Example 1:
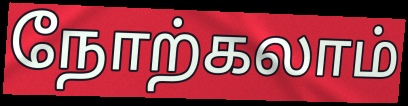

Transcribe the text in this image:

நோற்கலாம்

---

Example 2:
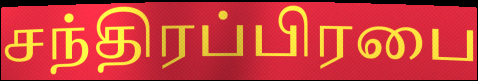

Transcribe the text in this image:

சந்திரப்பிரபை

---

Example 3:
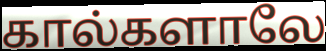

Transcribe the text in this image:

கால்களாலே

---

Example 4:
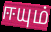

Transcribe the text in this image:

ஈயும்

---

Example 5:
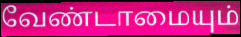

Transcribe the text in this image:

வேண்டாமையும்